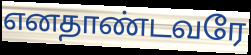
எனதாண்டவரே